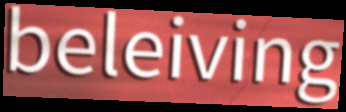
beleiving